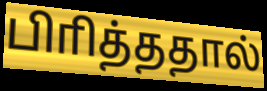
பிரித்ததால்